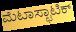
ಮೆಟಾಸ್ಟಾಟಿಕ್